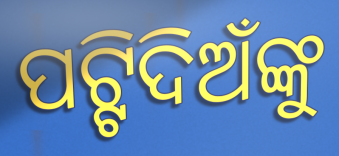
ପଟ୍ଟିଦିଅଁଙ୍କୁ